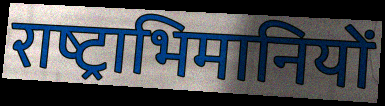
राष्ट्राभिमानियों